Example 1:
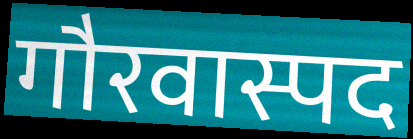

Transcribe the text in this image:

गौरवास्पद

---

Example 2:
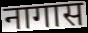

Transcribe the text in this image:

नागास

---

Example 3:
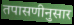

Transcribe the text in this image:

तपासणीनुसार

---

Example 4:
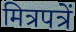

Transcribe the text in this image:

मित्रपत्रें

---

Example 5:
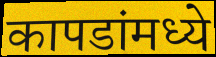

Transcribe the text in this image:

कापडांमध्ये